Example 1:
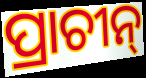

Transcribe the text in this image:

ପ୍ରାଚୀନ୍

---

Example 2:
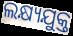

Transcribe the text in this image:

ଲକ୍ଷ୍ୟଯୁକ୍ତ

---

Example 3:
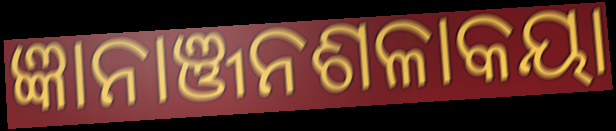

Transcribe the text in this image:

ଜ୍ଞାନାଞ୍ଜନଶଳାକୟା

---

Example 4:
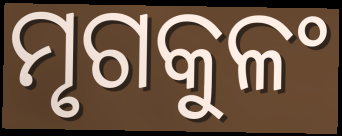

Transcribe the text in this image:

ମୃଗକୁଳଂ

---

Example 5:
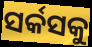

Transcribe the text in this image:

ସର୍କସକୁ